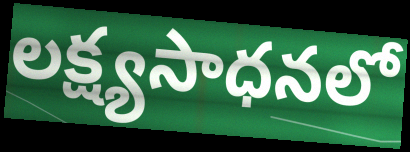
లక్ష్యసాధనలో